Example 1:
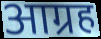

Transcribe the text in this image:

आग्रह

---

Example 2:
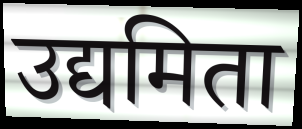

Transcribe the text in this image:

उद्यमिता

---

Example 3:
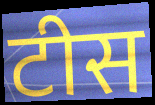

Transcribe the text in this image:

टीस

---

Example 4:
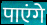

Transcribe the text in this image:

पाएंगे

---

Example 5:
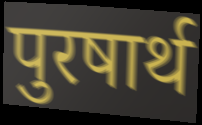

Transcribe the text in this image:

पुरषार्थ